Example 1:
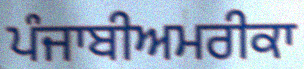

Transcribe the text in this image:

ਪੰਜਾਬੀਅਮਰੀਕਾ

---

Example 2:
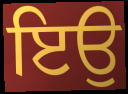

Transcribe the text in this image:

ਇਉ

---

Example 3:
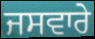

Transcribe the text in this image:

ਜਸਵਾਰੇ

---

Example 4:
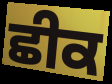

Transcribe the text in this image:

ਛੀਕ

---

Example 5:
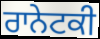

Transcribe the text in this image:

ਰਾਨੇਟਕੀ